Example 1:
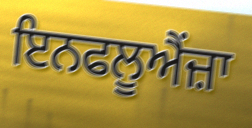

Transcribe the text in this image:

ਇਨਫਲੂਐਂਜ਼ਾ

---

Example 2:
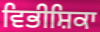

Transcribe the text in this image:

ਵਿਭੀਸ਼ਿਕਾ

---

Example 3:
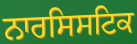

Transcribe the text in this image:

ਨਾਰਸਿਸਟਿਕ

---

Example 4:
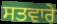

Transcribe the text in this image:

ਸਤਵਾਰੇ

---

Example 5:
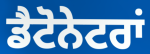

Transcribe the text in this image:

ਡੈਟੋਨੇਟਰਾਂ